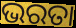
ଭରତା